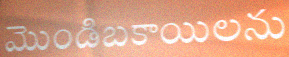
మొండిబకాయిలను